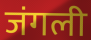
जंगली